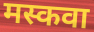
मस्कवा